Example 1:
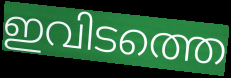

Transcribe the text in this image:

ഇവിടത്തെ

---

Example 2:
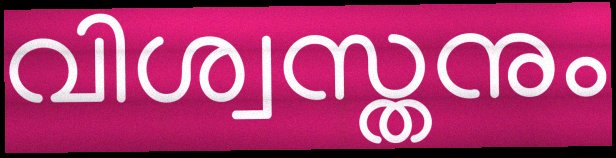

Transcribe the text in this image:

വിശ്വസ്തനും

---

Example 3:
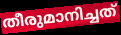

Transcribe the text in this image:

തീരുമാനിച്ചത്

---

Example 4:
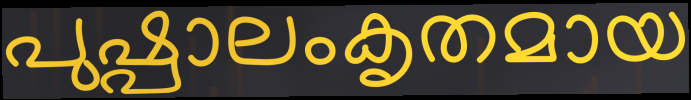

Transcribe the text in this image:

പുഷ്പാലംകൃതമായ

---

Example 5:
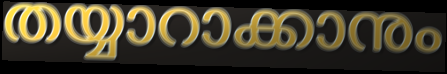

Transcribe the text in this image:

തയ്യാറാക്കാനും